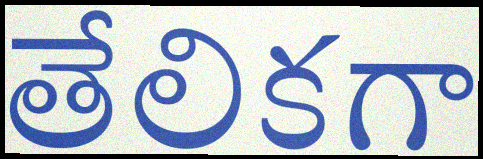
తేలికగా